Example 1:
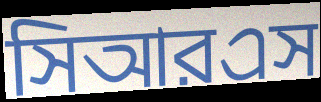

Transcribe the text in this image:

সিআরএস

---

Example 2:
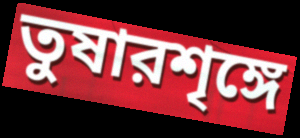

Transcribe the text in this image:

তুষারশৃঙ্গে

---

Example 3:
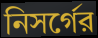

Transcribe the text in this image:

নিসর্গের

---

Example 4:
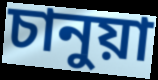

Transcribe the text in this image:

চানুয়া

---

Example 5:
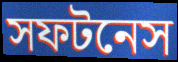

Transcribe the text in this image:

সফটনেস